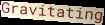
Gravitating